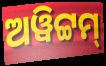
ଅୱିଟ୍ଟମ୍